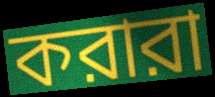
করারা